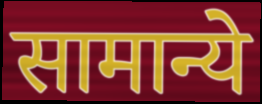
सामान्ये